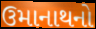
ઉમાનાથનો